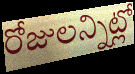
రోజులన్నిట్లో